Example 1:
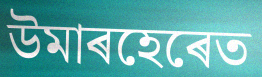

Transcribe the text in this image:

উমাৰহেৰেত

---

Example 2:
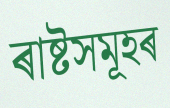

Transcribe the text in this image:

ৰাষ্টসমূহৰ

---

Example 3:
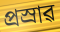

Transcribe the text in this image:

প্ৰস্ৰাৱ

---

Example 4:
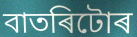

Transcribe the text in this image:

বাতৰিটোৰ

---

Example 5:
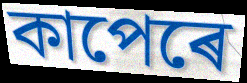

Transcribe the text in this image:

কাপেৰে